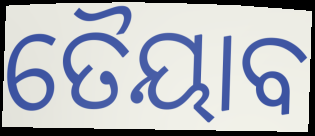
ତୈୟାବ